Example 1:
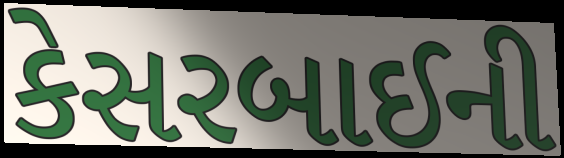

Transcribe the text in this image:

કેસરબાઈની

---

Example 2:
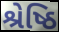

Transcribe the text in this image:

શ્રેષ્ઠિ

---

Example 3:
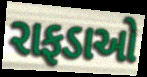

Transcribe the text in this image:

રાફડાઓ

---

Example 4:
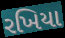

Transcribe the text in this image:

રખિયા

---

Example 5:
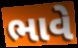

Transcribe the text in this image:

ભાવે